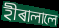
হীৰালালে